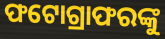
ଫଟୋଗ୍ରାଫରଙ୍କୁ